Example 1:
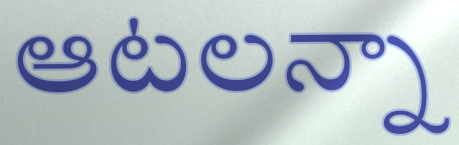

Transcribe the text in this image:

ఆటలన్నా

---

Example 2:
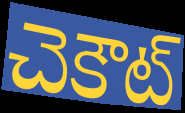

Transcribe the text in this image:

చెకౌట్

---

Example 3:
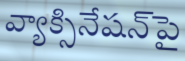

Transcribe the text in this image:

వ్యాక్సినేషన్‌పై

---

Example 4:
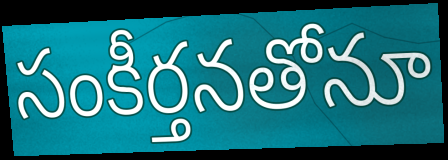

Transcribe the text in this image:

సంకీర్తనతోనూ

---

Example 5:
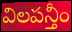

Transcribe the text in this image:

విలపన్తీం